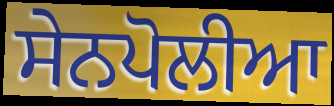
ਸੇਨਪੋਲੀਆ